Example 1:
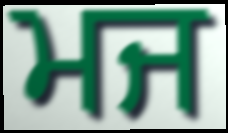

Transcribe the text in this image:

ਮਜ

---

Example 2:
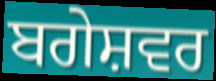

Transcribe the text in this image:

ਬਗੇਸ਼ਵਰ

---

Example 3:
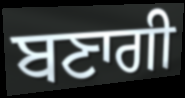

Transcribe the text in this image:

ਬਣਾਗੀ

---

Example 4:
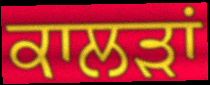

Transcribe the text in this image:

ਕਾਲੜਾਂ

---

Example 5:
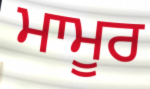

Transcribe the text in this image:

ਮਾਮੂਰ